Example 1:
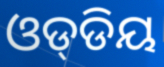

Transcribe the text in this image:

ଓଡ୍‌ଡିୟ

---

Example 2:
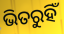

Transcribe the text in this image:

ଭିତରୁହିଁ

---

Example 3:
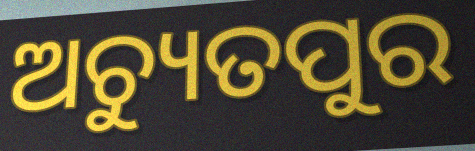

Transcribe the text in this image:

ଅଚ୍ୟୁତପୁର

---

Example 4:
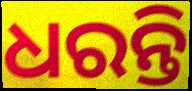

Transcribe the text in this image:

ଧରନ୍ତି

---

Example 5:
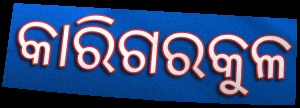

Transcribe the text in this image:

କାରିଗରକୁଳ